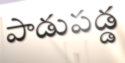
పాడుపడ్డ